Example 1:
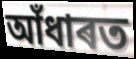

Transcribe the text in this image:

আঁধাৰত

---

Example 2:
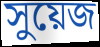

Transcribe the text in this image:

সুয়েজ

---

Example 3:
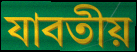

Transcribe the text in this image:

যাবতীয়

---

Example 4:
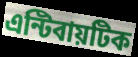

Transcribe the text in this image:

এন্টিবায়টিক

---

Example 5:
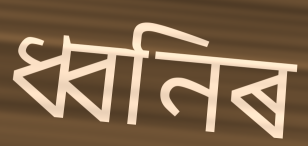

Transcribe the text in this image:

ধ্বনিৰ